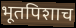
भूतपिशाच